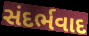
સંદર્ભવાદ